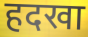
हदखा